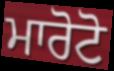
ਮਾਰੋਟੋ